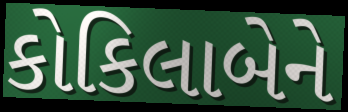
કોકિલાબેને